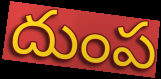
దుంప